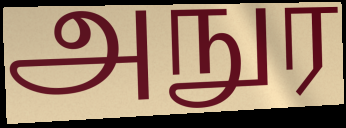
அநுர